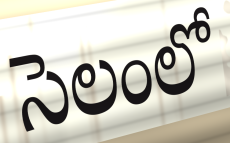
సెలంలో